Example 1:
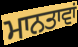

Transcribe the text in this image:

ਮਾਨਤਾਵਾਂ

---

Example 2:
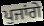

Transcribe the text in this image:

ਪੁਜਾਂਗੇ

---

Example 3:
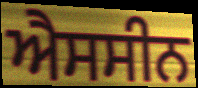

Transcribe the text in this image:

ਐਸਸੀਨ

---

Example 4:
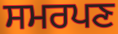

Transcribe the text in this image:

ਸਮਰਪਣ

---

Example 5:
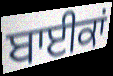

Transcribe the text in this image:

ਬਾਈਕਾਂ